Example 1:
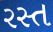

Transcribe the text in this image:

રસ્ત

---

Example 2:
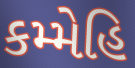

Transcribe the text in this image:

કમ્મેહિ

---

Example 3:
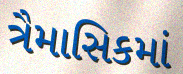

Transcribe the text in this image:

ત્રૈમાસિકમાં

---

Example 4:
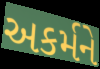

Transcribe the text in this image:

અકર્મને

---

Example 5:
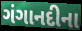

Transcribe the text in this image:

ગંગાનદીના